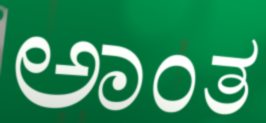
ಅಾಂತ